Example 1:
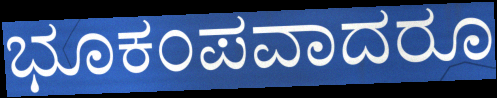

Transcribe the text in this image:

ಭೂಕಂಪವಾದರೂ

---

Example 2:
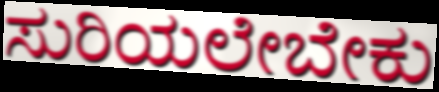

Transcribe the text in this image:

ಸುರಿಯಲೇಬೇಕು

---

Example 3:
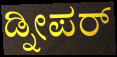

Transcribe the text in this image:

ಡ್ನೀಪರ್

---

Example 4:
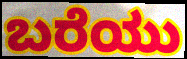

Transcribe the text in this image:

ಬರೆಯು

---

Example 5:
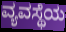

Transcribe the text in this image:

ವ್ಯವಸ್ಥೆಯ